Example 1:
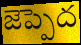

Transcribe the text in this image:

జెప్పెద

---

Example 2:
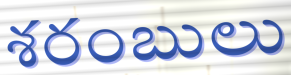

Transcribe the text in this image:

శరంబులు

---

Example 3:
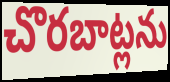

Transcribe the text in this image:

చొరబాట్లను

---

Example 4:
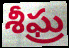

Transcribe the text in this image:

శీఘ్ర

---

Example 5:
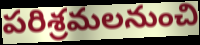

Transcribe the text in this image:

పరిశ్రమలనుంచి